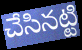
చేసినట్టి